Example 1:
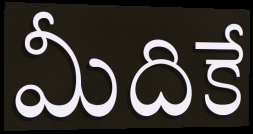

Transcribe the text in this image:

మీదికే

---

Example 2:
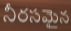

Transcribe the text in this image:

నీరసమైన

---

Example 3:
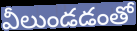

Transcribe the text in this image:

వీలుండడంతో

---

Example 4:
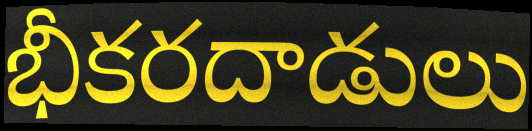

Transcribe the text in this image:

భీకరదాడులు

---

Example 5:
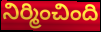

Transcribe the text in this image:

నిర్మించింది